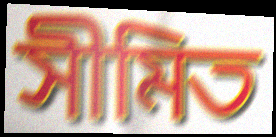
সীমিত